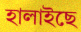
হালাইছে